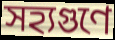
সহ্যগুণে